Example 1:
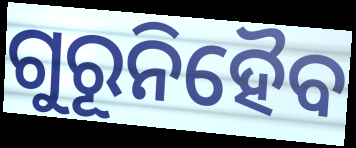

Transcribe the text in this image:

ଗୁରୂନିହୈବ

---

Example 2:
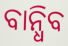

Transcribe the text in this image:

ବାନ୍ଧିବ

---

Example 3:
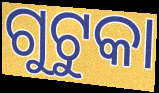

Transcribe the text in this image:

ଗୁଟୁକା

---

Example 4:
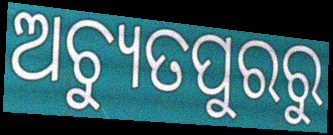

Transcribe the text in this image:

ଅଚ୍ୟୁତପୁରରୁ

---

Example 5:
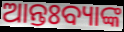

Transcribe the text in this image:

ଆନ୍ତଃବ୍ୟାଙ୍କ